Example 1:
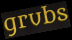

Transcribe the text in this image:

grubs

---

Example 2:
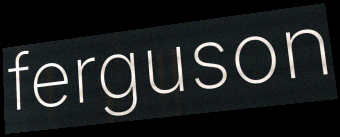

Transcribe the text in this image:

ferguson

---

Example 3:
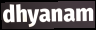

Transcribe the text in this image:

dhyanam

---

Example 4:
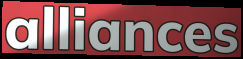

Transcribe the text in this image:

alliances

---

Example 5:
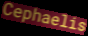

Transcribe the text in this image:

Cephaelis